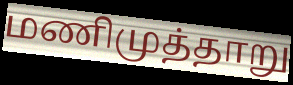
மணிமுத்தாறு